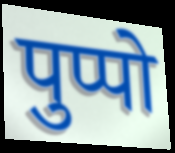
पुप्पो